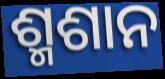
ଶ୍ମଶାନ